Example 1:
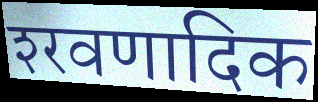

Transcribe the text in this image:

श्रवणादिक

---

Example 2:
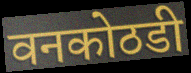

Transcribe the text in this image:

वनकोठडी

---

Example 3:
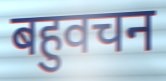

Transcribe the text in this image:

बहुवचन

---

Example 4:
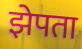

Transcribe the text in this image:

झेपता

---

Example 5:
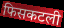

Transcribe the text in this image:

फिसकटली